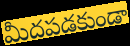
మీదపడకుండా